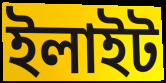
ইলাইট